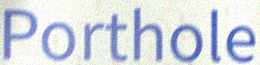
Porthole